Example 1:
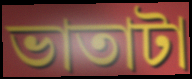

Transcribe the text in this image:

ভাতাটা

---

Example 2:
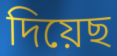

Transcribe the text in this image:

দিয়েছ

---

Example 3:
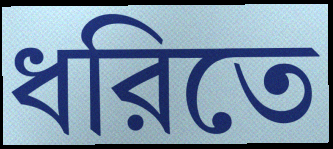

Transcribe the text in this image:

ধরিতে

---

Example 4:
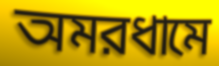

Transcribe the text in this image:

অমরধামে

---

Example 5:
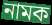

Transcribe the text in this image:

নামক